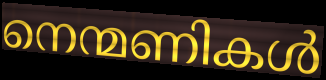
നെന്മണികൾ